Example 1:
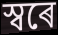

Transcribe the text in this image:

স্বৰে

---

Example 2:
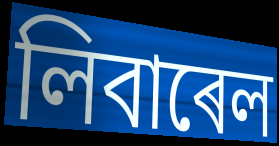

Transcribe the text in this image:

লিবাৰেল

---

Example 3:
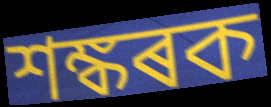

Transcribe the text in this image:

শঙ্কৰক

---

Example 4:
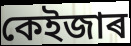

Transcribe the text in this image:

কেইজাৰ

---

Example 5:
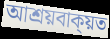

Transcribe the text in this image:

আশ্ৰয়বাক্য়ত